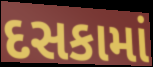
દસકામાં